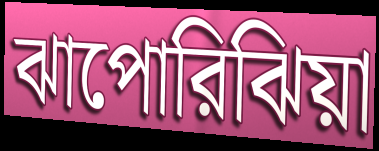
ঝাপোরিঝিয়া